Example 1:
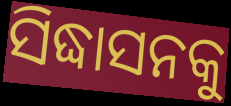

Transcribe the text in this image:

ସିଦ୍ଧାସନକୁ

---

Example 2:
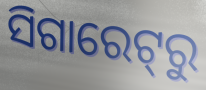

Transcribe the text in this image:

ସିଗାରେଟ୍‌ରୁ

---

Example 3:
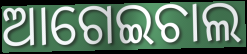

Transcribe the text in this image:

ଆଗେଇଚାଲ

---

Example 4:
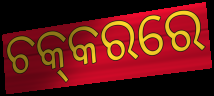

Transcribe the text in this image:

ଚକ୍‌କରରେ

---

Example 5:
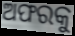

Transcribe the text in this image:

ଅଫରକୁ